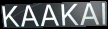
KAAKAI